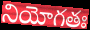
నియోగతః